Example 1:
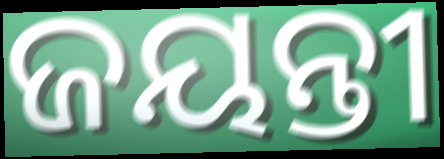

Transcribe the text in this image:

ଜୟନ୍ତୀ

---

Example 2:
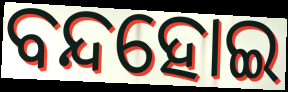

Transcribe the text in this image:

ବନ୍ଦହୋଇ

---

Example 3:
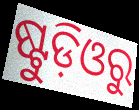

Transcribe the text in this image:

ଷ୍ଟୁଡ଼ିଓରୁ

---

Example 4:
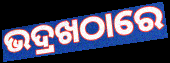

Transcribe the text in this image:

ଭଦ୍ରଖଠାରେ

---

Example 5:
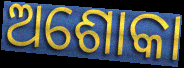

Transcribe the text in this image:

ଅଶୋକା